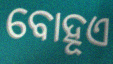
ବୋହୂଏ